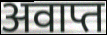
अवाप्त